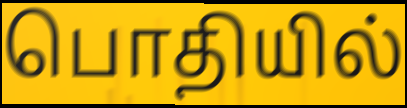
பொதியில்